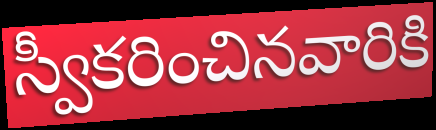
స్వీకరించినవారికి